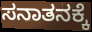
ಸನಾತನಕ್ಕೆ